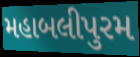
મહાબલીપુરમ